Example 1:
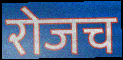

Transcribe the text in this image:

रोजच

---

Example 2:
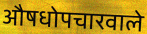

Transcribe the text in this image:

औषधोपचारवाले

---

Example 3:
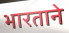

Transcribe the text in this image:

भारताने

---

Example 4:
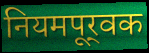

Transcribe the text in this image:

नियमपूर्वक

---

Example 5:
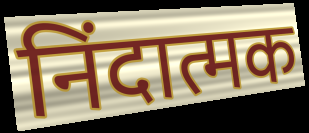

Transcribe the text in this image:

निंदात्मक